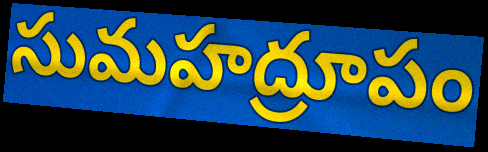
సుమహద్రూపం